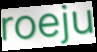
roeju